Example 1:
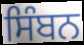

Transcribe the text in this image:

ਸਿੰਬਨ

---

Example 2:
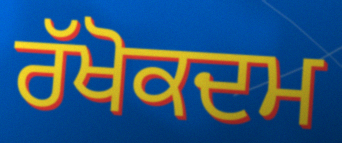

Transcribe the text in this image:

ਰੱਖੋਕਦਮ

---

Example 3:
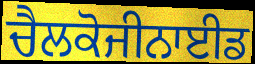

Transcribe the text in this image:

ਚੈਲਕੋਜੀਨਾਈਡ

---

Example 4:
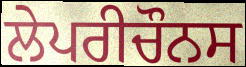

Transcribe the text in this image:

ਲੇਪਰੀਚੌਨਸ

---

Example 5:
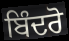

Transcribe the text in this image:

ਬਿੰਦਰੋ